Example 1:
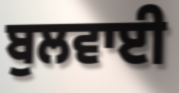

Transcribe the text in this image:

ਬੁਲਵਾਈ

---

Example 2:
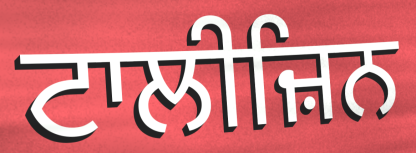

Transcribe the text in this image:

ਟਾਲੀਜ਼ਿਨ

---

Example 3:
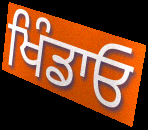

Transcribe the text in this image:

ਖਿੰਡਾਓ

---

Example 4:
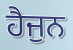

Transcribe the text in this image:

ਹੈਜੁਨ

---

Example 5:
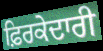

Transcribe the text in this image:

ਫ਼ਿਰਕੇਦਾਰੀ